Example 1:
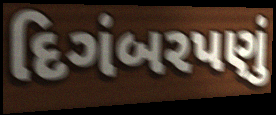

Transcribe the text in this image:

દિગંબરપણું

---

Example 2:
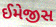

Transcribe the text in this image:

ઈમેજીસ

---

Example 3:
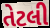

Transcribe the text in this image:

તેટલી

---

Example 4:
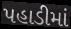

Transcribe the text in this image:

પહાડીમાં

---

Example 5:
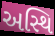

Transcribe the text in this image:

અસ્થિ